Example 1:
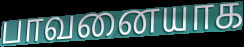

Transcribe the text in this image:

பாவனையாக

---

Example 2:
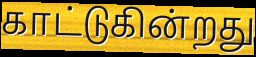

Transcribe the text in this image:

காட்டுகின்றது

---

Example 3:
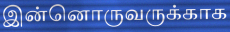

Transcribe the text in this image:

இன்னொருவருக்காக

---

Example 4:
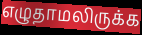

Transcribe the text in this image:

எழுதாமலிருக்க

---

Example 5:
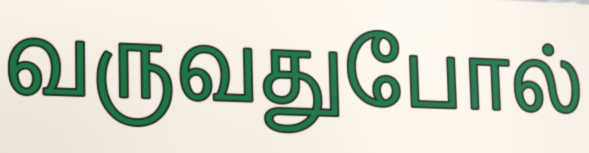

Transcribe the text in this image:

வருவதுபோல்